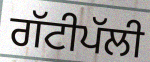
ਗੱਟੀਪੱਲੀ